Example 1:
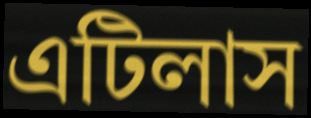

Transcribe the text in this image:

এটিলাস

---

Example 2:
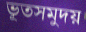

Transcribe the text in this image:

ভূতসমুদয়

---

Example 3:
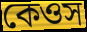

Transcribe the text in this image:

কেওস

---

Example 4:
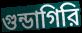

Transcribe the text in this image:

গুন্ডাগিরি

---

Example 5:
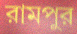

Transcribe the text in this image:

রামপুর